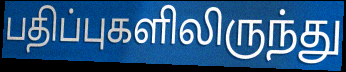
பதிப்புகளிலிருந்து